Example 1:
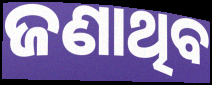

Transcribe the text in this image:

ଜଣାଥିବ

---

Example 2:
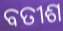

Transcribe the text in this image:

ବତୀଶ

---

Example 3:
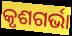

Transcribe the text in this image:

କୃଶଗର୍ଭା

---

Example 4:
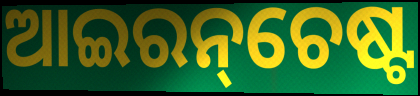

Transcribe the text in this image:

ଆଇରନ୍‌ଚେଷ୍ଟ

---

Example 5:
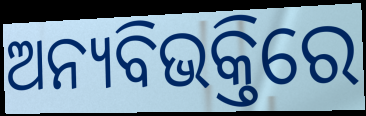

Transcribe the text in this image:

ଅନ୍ୟବିଭକ୍ତିରେ